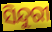
ସିନ୍ଦୁରୀ